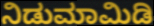
ನಿಡುಮಾಮಿಡಿ